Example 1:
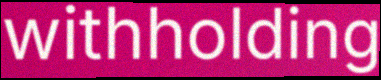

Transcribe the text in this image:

withholding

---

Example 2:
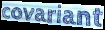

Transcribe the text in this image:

covariant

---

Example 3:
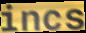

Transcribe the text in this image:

incs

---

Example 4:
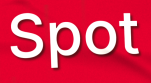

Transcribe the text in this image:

Spot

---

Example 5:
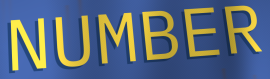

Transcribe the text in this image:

NUMBER